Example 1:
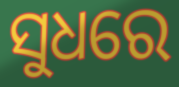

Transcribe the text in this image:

ସୁଧରେ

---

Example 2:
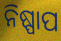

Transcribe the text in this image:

ନିଷ୍ପାପ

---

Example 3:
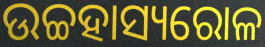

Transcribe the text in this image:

ଉଚ୍ଚହାସ୍ୟରୋଳ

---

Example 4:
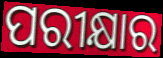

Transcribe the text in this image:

ପରୀକ୍ଷାର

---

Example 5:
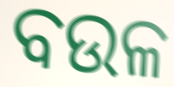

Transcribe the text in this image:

ବଉଳ